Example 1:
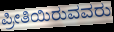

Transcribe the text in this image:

ಪ್ರೀತಿಯಿರುವವರು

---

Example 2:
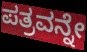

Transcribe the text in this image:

ಪತ್ರವನ್ನೇ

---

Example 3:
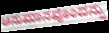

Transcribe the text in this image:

ಅನುಮಾನವೊಂದನ್ನು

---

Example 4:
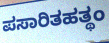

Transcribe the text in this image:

ಪಸಾರಿತಹತ್ಥಂ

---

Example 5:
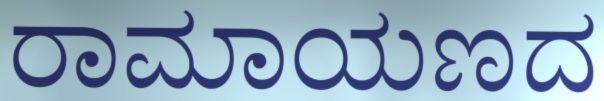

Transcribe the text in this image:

ರಾಮಾಯಣದ